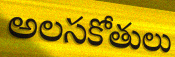
అలసకోతులు